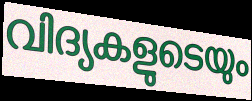
വിദ്യകളുടെയും